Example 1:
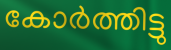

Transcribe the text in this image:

കോർത്തിട്ടു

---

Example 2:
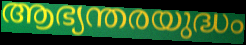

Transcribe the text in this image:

ആഭ്യന്തരയുദ്ധം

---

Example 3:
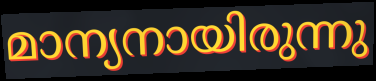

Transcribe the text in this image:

മാന്യനായിരുന്നു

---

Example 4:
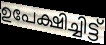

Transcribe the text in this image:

ഉപേക്ഷിച്ചിട്ട്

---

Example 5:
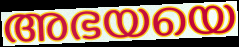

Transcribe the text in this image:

അഭയയെ